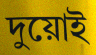
দুয়োই